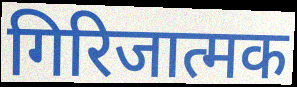
गिरिजात्मक